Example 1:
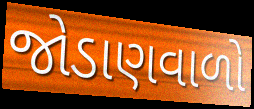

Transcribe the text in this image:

જોડાણવાળો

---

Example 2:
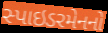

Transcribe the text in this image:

સ્પાઇડરમેનનો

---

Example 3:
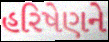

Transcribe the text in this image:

હરિષેણને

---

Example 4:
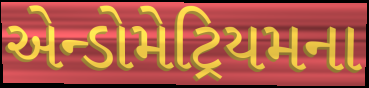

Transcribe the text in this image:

એન્ડોમેટ્રિયમના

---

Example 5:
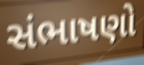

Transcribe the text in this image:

સંભાષણો